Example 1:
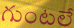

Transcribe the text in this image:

గుంటలే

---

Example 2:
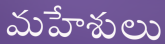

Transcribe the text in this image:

మహేశులు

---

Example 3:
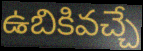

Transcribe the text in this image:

ఉబికివచ్చే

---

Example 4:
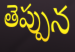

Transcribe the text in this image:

తెప్పున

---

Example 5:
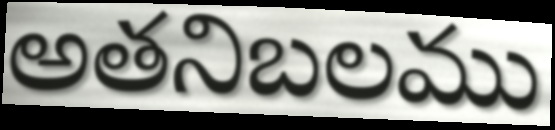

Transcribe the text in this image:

అతనిబలము